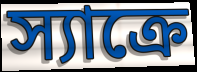
স্যাক্রে